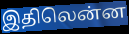
இதிலென்ன